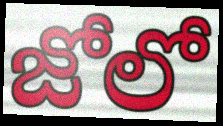
జోలో